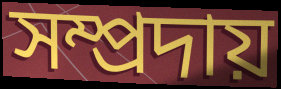
সম্প্ৰদায়